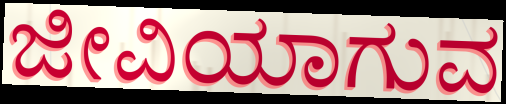
ಜೀವಿಯಾಗುವ